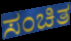
ಸಂಚಿತ